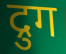
द्रुग